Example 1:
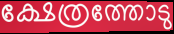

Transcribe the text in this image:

ക്ഷേത്രത്തോടു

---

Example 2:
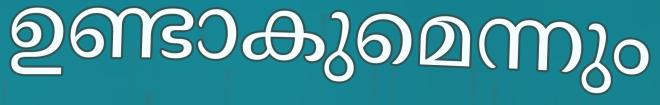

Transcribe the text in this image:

ഉണ്ടാകുമെന്നും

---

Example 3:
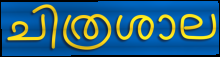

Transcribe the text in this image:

ചിത്രശാല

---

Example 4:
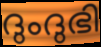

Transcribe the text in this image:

ദുംദുഭി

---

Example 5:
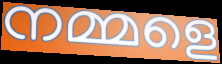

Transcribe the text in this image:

നമ്മളെ